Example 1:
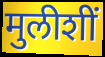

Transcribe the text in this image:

मुलीशीं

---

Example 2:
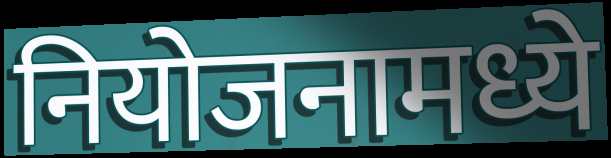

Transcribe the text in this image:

नियोजनामध्ये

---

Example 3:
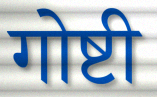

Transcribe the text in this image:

गोष्टी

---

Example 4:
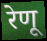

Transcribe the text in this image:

रेणू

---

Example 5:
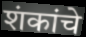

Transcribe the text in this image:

शंकांचे